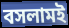
বসলামই